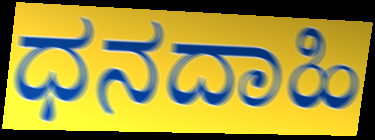
ಧನದಾಹಿ